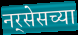
नर्सेसच्या